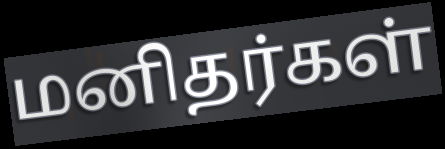
மனிதர்கள்